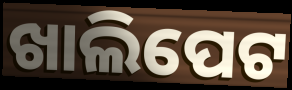
ଖାଲିପେଟ